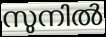
സുനിൽ